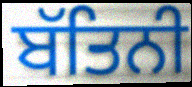
ਬੱਤਿਨੀ